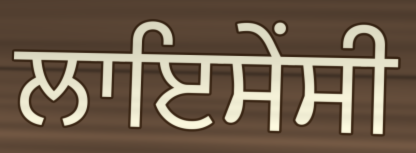
ਲਾਇਸੇਂਸੀ